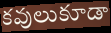
కవులుకూడా